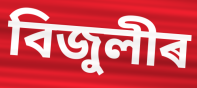
বিজুলীৰ